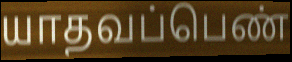
யாதவப்பெண்